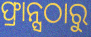
ଫ୍ରାନ୍ସଠାରୁ